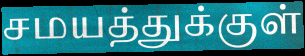
சமயத்துக்குள்